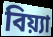
বিয়্যা